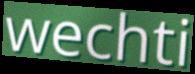
wechti